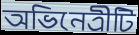
অভিনেত্রীটি